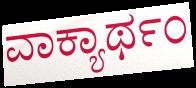
ವಾಕ್ಯಾರ್ಥಂ